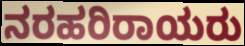
ನರಹರಿರಾಯರು